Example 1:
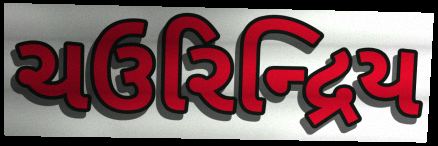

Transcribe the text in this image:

ચઉરિન્દ્રિય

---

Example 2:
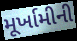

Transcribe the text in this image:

મૂર્ખામીની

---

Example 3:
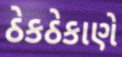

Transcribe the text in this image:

ઠેકઠેકાણે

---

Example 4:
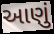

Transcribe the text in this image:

આણું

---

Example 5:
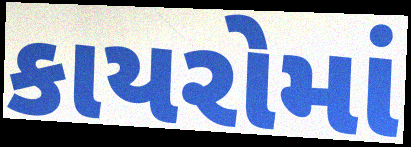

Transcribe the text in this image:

કાયરોમાં